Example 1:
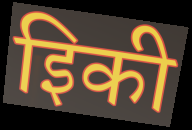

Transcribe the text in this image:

इिकी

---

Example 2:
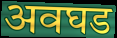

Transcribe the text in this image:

अवघड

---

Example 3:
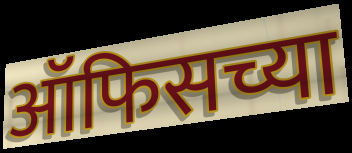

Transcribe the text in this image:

ऑफिसच्या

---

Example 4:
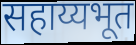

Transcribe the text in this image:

सहाय्यभूत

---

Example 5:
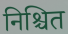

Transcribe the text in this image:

निश्चित